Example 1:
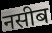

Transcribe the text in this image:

नसीब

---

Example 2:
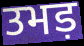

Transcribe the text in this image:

उभड़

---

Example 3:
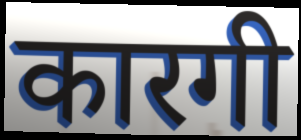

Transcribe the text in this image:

कारगी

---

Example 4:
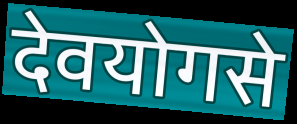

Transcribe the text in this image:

देवयोगसे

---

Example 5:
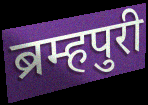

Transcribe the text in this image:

ब्रम्हपुरी